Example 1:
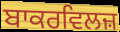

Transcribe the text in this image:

ਬਾਕਰਵਿਲਜ਼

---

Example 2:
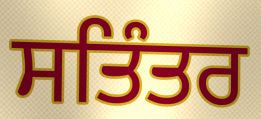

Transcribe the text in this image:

ਸਤਿੰਤਰ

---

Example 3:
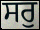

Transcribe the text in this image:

ਸਰੁ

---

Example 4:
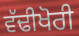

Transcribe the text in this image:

ਵੱਢੀਖੋਰੀ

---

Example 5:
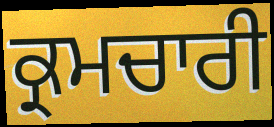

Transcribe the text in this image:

ਕ੍ਰਮਚਾਰੀ